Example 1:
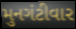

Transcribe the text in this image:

મુનગંટીવાર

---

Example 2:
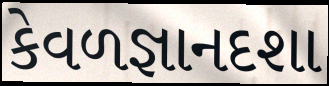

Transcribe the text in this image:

કેવળજ્ઞાનદશા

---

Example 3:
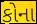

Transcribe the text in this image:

કોના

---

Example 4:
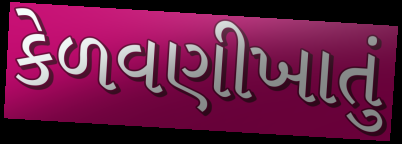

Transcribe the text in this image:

કેળવણીખાતું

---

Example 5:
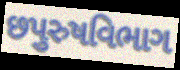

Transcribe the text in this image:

છપુરુષવિભાગ